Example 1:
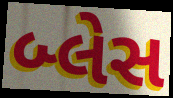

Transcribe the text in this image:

બ્લેસ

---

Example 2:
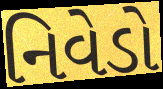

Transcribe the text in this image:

નિવેડો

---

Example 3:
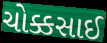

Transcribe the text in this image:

ચોક્કસાઈ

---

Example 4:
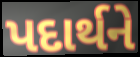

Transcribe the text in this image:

પદાર્થને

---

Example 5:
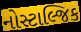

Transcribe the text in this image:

નોસ્ટાલ્જિક